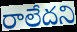
రాలేదని